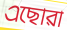
এছোৱা